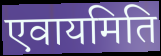
एवायमिति